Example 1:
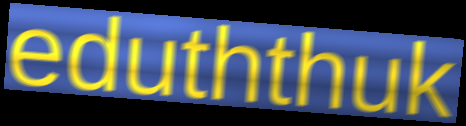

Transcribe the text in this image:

eduththuk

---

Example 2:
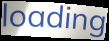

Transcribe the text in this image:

loading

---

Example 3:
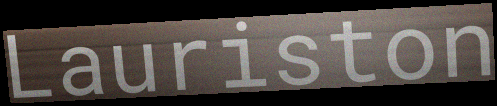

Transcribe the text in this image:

Lauriston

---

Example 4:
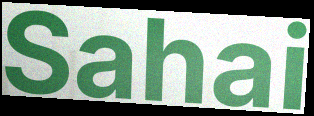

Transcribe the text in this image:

Sahai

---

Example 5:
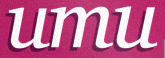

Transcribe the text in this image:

umu